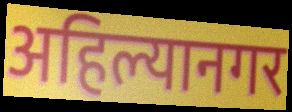
अहिल्यानगर